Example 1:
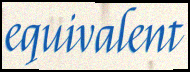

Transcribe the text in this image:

equivalent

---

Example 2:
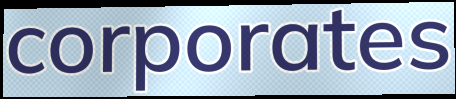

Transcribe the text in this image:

corporates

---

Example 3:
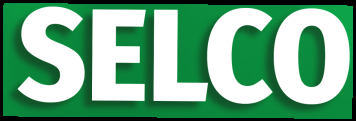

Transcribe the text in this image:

SELCO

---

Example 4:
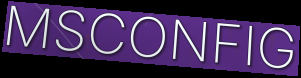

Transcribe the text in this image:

MSCONFIG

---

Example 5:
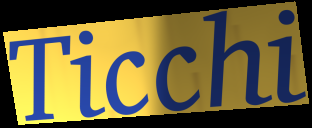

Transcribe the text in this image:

Ticchi